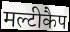
मल्टीकैप